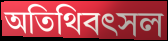
অতিথিবৎসল